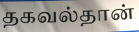
தகவல்தான்